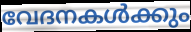
വേദനകൾക്കും